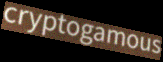
cryptogamous